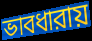
ভাবধারায়